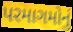
પરમાગમોનું